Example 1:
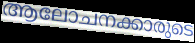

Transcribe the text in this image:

ആലോചനക്കാരുടെ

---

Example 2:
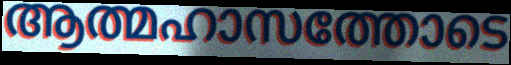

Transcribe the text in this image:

ആത്മഹാസത്തോടെ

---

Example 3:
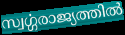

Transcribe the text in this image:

സ്വൎഗ്ഗരാജ്യത്തിൽ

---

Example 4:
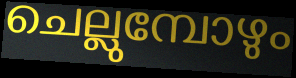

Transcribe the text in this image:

ചെല്ലുമ്പോഴും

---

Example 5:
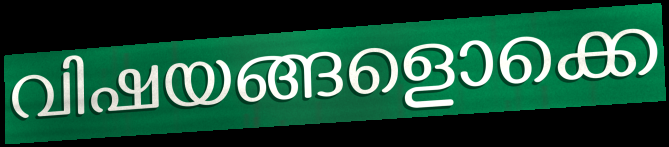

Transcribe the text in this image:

വിഷയങ്ങളൊക്കെ